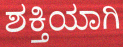
ಶಕ್ತಿಯಾಗಿ